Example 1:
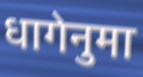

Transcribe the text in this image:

धागेनुमा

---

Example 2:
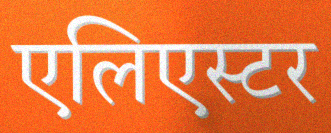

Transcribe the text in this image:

एलिएस्टर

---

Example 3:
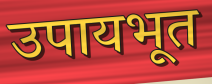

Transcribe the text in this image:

उपायभूत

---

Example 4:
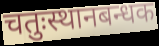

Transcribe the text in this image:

चतुःस्थानबन्धक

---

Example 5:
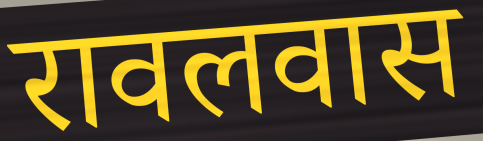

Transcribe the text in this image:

रावलवास